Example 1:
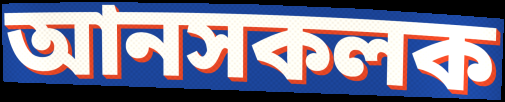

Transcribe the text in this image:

আনসকলক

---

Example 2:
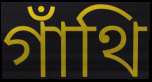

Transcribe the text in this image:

গাঁথি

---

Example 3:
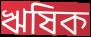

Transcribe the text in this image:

ঋষিক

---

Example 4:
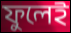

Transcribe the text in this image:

ফুলেই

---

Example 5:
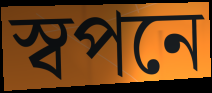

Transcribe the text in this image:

স্বপনে